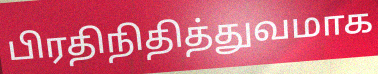
பிரதிநிதித்துவமாக